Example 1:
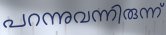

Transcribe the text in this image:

പറന്നുവന്നിരുന്ന്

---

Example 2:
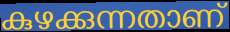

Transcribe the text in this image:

കുഴക്കുന്നതാണ്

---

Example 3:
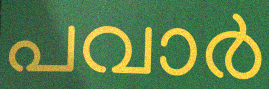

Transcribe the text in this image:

പവാർ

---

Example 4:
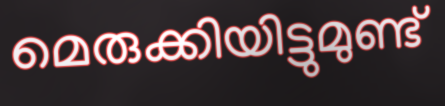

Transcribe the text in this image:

മെരുക്കിയിട്ടുമുണ്ട്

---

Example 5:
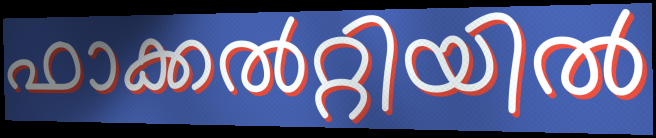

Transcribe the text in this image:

ഫാക്കൽറ്റിയിൽ